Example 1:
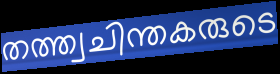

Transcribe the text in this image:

തത്ത്വചിന്തകരുടെ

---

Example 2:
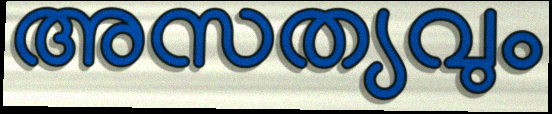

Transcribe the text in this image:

അസത്യവും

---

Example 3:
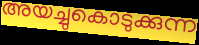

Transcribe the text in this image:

അയച്ചുകൊടുക്കുന്ന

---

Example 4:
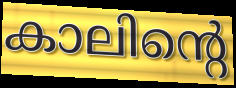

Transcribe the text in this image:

കാലിന്റെ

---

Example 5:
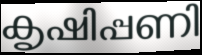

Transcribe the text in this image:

കൃഷിപ്പണി